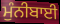
ਮੁੰਨੀਬਾਈ